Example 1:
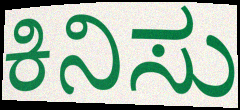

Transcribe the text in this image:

ಕಿನಿಸು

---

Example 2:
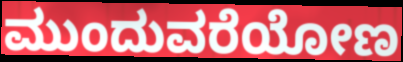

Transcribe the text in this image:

ಮುಂದುವರೆಯೋಣ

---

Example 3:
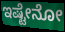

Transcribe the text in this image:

ಇಷ್ಟೇನೋ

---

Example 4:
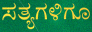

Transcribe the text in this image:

ಸತ್ಯಗಳಿಗೂ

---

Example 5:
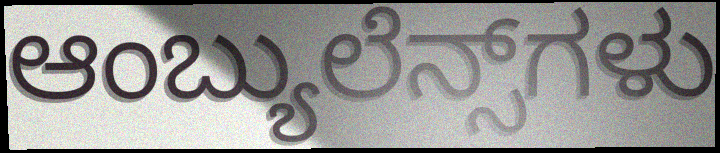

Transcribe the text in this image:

ಆಂಬ್ಯುಲೆನ್ಸ್‌ಗಳು